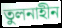
তুলনাহীন